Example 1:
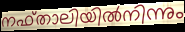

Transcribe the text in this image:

നഫ്താലിയിൽനിന്നും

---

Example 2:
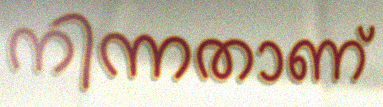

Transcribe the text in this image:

നിന്നതാണ്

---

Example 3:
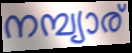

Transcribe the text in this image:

നമ്പ്യാര്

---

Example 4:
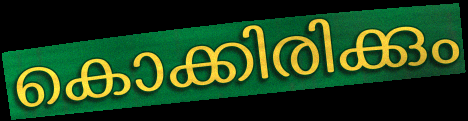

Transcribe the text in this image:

കൊക്കിരിക്കും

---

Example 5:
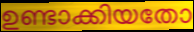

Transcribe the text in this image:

ഉണ്ടാക്കിയതോ